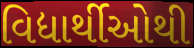
વિદ્યાર્થીઓથી